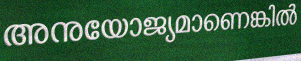
അനുയോജ്യമാണെങ്കിൽ